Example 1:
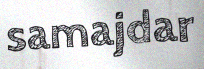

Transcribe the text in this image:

samajdar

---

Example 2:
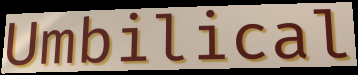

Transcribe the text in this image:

Umbilical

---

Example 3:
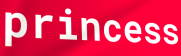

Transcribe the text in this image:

princess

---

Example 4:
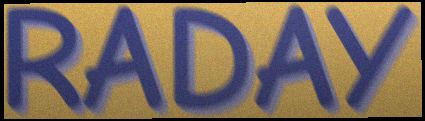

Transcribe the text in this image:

RADAY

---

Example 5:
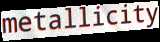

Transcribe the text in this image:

metallicity